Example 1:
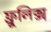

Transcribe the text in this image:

ফ্রুলিক্স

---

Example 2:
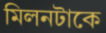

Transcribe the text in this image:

মিলনটাকে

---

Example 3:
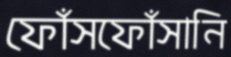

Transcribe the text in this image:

ফোঁসফোঁসানি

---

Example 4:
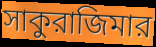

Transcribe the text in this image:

সাকুরাজিমার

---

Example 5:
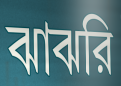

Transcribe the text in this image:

ঝাঝরি